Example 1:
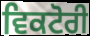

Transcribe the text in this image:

ਵਿਕਟੋਰੀ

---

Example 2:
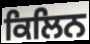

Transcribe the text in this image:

ਕਿਲਿਨ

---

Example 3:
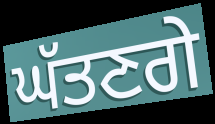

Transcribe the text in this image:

ਘੱਤਣਗੇ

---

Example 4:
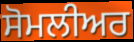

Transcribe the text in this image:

ਸੋਮਲੀਅਰ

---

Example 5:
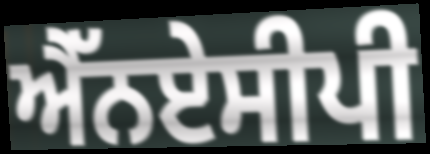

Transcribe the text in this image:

ਐੱਨਏਸੀਪੀ